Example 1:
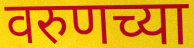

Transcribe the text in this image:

वरुणच्या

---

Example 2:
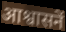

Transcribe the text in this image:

आश्वासनें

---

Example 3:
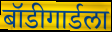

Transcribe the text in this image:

बॉडीगार्डला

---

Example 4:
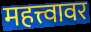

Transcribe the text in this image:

महत्त्वावर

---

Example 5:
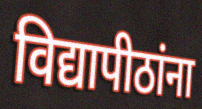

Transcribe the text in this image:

विद्यापीठांना